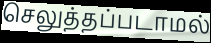
செலுத்தப்படாமல்